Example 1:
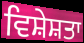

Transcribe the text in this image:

ਵਿਸ਼ੇਸ਼ਤਾ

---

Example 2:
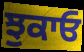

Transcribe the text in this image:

ਝੁਕਾਓ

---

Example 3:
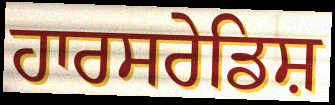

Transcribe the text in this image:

ਹਾਰਸਰੇਡਿਸ਼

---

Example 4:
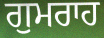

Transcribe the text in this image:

ਗੁਮਰਾਹ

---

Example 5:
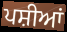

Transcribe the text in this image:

ਪਸ਼ੀਆਂ